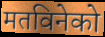
मतविनेको